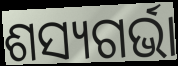
ଶସ୍ୟଗର୍ଭା